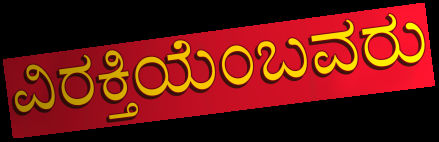
ವಿರಕ್ತಿಯೆಂಬವರು